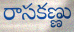
రాసకణ్ణు